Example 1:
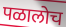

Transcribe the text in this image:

पळालोच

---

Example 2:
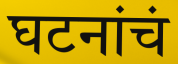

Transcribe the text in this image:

घटनांचं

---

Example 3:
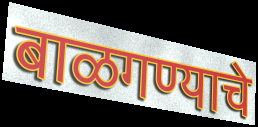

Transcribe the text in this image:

बाळगण्याचे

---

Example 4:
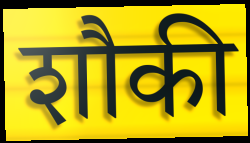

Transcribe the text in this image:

शौकी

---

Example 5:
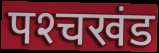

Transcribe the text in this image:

पश्चखंड